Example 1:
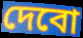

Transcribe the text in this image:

দেবো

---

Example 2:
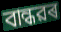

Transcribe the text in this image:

বান্ধৱৰ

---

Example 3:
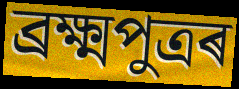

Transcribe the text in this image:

ব্ৰক্ষ্মপুত্ৰৰ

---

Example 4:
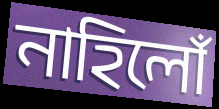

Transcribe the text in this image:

নাহিলোঁ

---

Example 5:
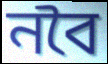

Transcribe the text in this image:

নবৈ